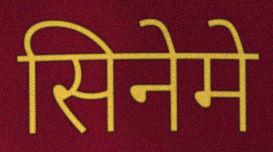
सिनेमे